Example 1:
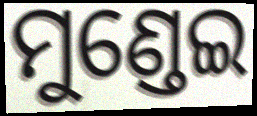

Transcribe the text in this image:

ମୁଣ୍ଡେଇ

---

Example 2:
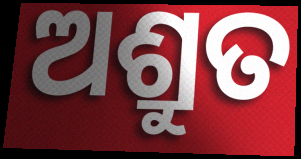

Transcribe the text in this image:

ଅଶ୍ରୁତ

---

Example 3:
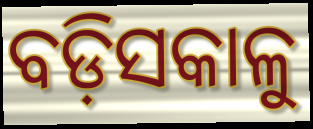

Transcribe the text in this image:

ବଡ଼ିସକାଳୁ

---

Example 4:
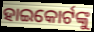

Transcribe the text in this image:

ହାଇକୋର୍ଟଙ୍କୁ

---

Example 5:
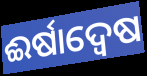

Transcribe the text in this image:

ଈର୍ଷାଦ୍ଵେଷ